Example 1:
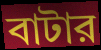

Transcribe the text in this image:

বাটার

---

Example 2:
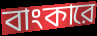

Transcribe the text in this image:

বাংকারে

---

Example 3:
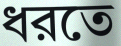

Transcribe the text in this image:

ধরতে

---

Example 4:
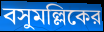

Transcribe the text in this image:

বসুমল্লিকের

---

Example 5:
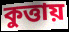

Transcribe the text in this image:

কুত্তায়